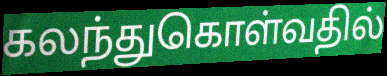
கலந்துகொள்வதில்